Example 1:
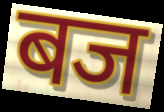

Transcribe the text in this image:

बज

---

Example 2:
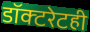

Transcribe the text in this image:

डॉक्‍टरेटही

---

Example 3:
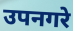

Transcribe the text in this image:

उपनगरे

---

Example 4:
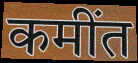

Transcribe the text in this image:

कमींत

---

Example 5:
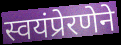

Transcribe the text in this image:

स्वयंप्रेरणेने